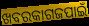
ଖବରକାଗଜପାଇଁ